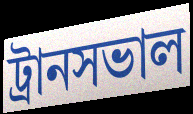
ট্রানসভাল